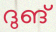
ദുങ്